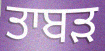
ਤਾਬੜ